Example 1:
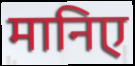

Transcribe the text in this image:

मानिए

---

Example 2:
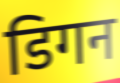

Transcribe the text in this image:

डिगन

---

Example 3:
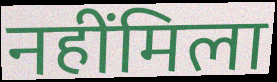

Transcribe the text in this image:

नहींमिला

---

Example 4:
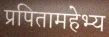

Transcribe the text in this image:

प्रपितामहेभ्य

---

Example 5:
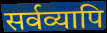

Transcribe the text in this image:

सर्वव्यापि